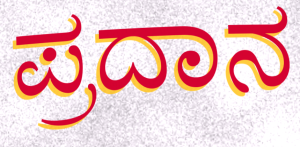
ಪ್ರದಾನ